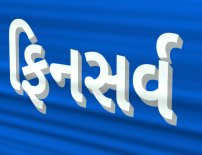
ફિનસર્વ